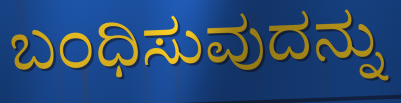
ಬಂಧಿಸುವುದನ್ನು